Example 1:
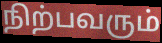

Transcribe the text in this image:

நிற்பவரும்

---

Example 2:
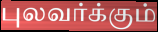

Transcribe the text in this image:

புலவர்க்கும்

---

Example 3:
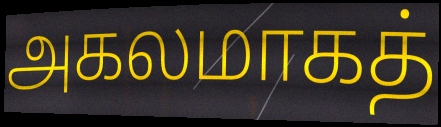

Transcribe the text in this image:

அகலமாகத்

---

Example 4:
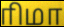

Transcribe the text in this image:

ரிமா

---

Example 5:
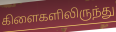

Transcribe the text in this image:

கிளைகளிலிருந்து